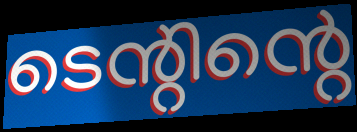
ടെന്റിന്റെ